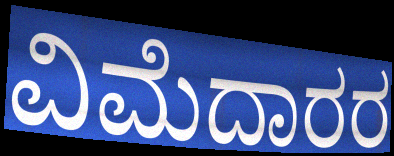
ವಿಮೆದಾರರ